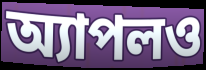
অ্যাপলও